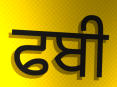
ਫਬੀ